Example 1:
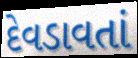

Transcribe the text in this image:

દેવડાવતાં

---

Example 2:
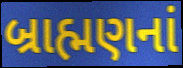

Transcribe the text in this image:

બ્રાહ્મણનાં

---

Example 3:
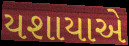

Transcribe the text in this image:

યશાયાએ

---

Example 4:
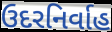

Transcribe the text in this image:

ઉદરનિર્વાહ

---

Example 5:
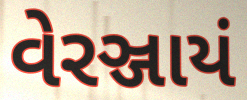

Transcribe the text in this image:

વેરઞ્જાયં